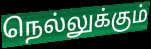
நெல்லுக்கும்